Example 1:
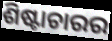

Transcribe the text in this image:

ଶିଷ୍ଟାଚାରର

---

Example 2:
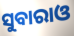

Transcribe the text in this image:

ସୁବାରାଓ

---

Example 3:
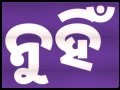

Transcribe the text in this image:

ନୁହିଁ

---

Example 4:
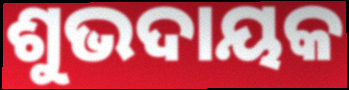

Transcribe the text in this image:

ଶୁଭଦାୟକ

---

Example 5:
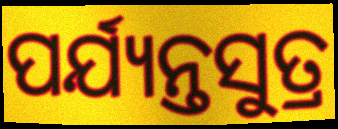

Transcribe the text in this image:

ପର୍ଯ୍ୟନ୍ତସୁତ୍ର